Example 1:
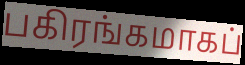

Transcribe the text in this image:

பகிரங்கமாகப்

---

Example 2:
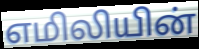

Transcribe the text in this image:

எமிலியின்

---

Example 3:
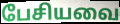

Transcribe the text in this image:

பேசியவை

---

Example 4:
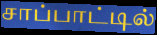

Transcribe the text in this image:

சாப்பாட்டில்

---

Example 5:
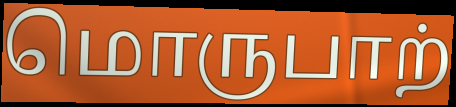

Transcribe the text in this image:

மொருபாற்